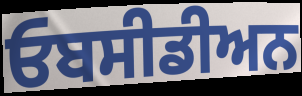
ਓਬਸੀਡੀਅਨ